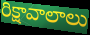
రిక్షావాలాలు